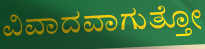
ವಿವಾದವಾಗುತ್ತೋ